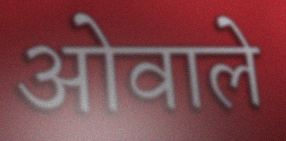
ओवाले